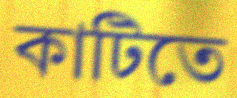
কাটিতে